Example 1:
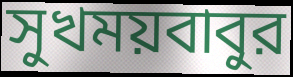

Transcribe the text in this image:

সুখময়বাবুর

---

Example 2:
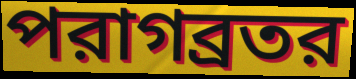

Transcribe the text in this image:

পরাগব্রতর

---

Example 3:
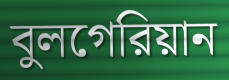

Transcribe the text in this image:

বুলগেরিয়ান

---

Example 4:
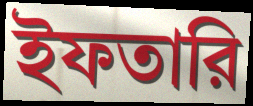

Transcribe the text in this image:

ইফতারি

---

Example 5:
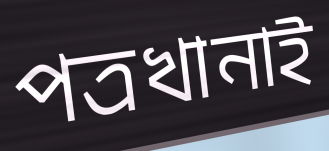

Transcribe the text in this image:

পত্রখানাই